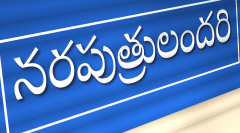
నరపుత్రులందరి